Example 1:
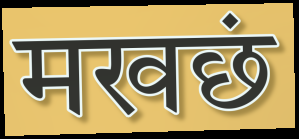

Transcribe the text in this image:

मखछं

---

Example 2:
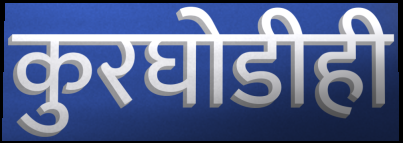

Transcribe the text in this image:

कुरघोडीही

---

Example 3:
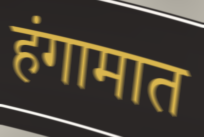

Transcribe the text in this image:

हंगामात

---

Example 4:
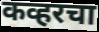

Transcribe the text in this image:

कव्हरचा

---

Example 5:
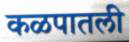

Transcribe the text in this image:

कळपातली